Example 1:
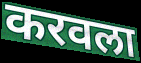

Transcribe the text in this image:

करवला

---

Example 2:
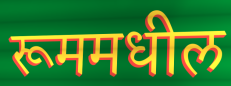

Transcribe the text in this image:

रूममधील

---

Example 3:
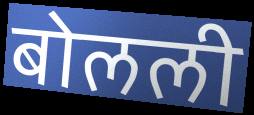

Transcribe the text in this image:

बोलली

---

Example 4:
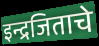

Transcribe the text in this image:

इन्द्रजिताचे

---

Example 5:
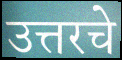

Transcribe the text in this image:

उत्तरचे